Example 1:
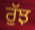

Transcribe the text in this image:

ਰੁੱਝ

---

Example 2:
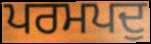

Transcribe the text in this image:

ਪਰਮਪਦੁ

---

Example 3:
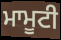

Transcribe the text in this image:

ਮਾਮੂਟੀ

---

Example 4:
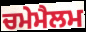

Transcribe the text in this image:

ਚਮੇਮੈਲਮ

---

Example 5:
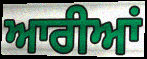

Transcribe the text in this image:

ਆਰੀਆਂ